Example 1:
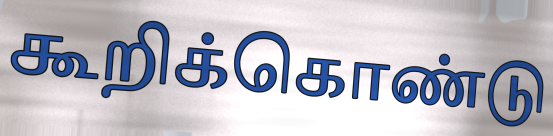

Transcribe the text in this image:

கூறிக்கொண்டு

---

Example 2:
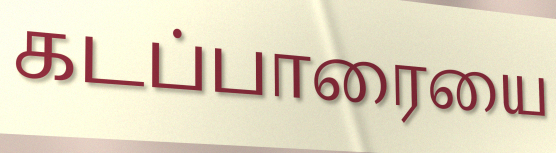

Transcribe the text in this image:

கடப்பாரையை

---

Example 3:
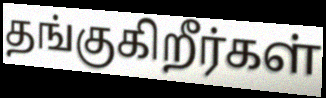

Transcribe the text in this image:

தங்குகிறீர்கள்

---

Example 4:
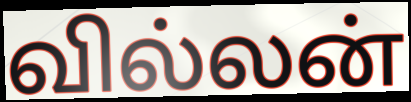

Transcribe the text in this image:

வில்லன்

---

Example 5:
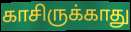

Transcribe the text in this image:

காசிருக்காது